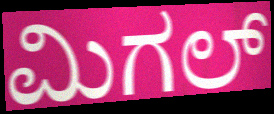
ಮಿಗಲ್